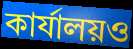
কার্যালয়ও